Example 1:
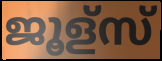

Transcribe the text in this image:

ജൂള്സ്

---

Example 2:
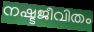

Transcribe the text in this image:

നഷ്ടജീവിതം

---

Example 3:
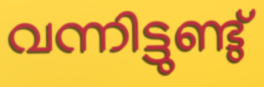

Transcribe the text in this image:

വന്നിട്ടുണ്ടു്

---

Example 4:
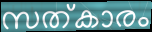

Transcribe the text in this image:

സത്കാരം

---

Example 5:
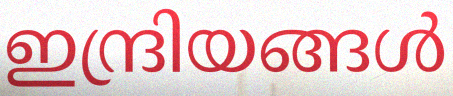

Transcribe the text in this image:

ഇന്ദ്രിയങ്ങൾ